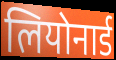
लियोनार्ड